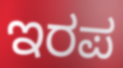
ಇರಪ